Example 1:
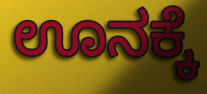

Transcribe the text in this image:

ಊನಕ್ಕೆ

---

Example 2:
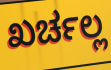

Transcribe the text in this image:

ಖರ್ಚಲ್ಲ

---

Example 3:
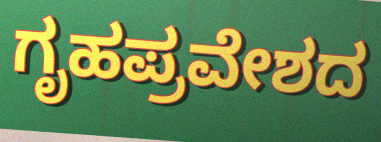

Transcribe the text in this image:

ಗೃಹಪ್ರವೇಶದ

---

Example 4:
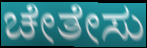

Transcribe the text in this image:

ಚೇತೇಸು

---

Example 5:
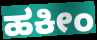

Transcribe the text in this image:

ಹಕೀಂ